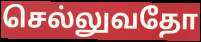
செல்லுவதோ